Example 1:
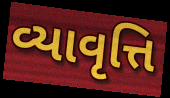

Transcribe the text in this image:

વ્યાવૃત્તિ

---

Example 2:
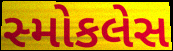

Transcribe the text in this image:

સ્મોકલેસ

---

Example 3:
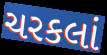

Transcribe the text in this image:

ચરકલાં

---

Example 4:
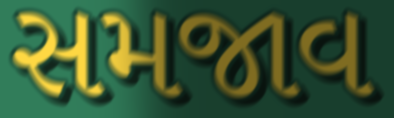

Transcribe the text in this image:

સમજાવ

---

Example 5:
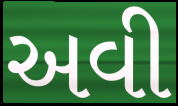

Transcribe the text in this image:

અવી